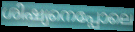
ശിഷ്യനെപ്പോലെ